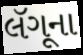
લૅગૂના